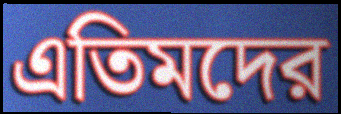
এতিমদের